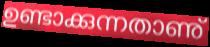
ഉണ്ടാക്കുന്നതാണു്